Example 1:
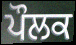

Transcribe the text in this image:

ਪੌਲਕ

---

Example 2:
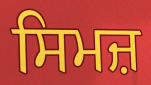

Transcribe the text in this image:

ਸਿਮਜ਼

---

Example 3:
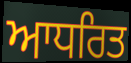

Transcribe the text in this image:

ਆਧਰਿਤ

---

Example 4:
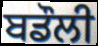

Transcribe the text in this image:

ਬਡੌਲੀ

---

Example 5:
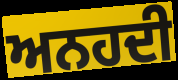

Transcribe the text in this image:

ਅਨਹਦੀ